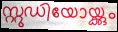
സ്റ്റുഡിയോയ്ക്കും